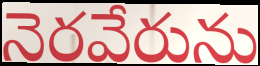
నెరవేరును